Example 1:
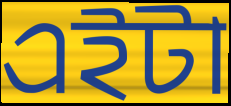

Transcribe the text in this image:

এইটা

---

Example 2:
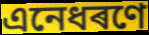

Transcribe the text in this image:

এনেধৰণে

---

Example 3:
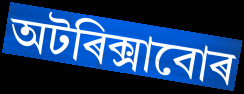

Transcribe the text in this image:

অটৰিক্সাবোৰ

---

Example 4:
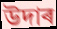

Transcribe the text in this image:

উদাৰ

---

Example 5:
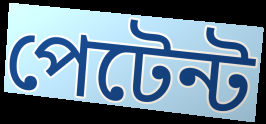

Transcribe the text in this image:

পেটেন্ট